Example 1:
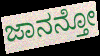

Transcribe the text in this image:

ಜಾನನ್ತೋ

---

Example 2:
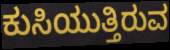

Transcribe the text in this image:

ಕುಸಿಯುತ್ತಿರುವ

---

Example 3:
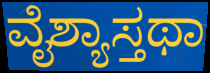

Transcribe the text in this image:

ವೈಶ್ಯಾಸ್ತಥಾ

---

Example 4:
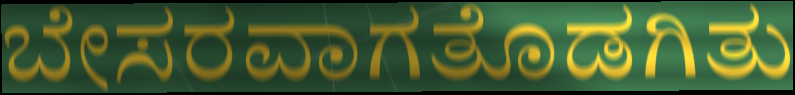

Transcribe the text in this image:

ಬೇಸರವಾಗತೊಡಗಿತು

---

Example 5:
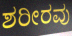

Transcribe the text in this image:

ಶರೀರವು